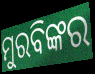
ମୁରବିଙ୍କର